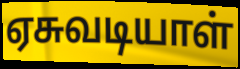
ஏசுவடியாள்